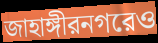
জাহাঙ্গীরনগরেও